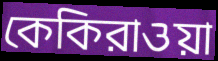
কেকিরাওয়া